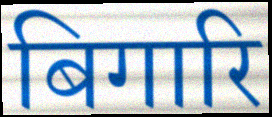
बिगारि